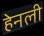
हेनली